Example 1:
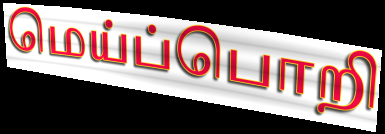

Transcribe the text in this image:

மெய்ப்பொறி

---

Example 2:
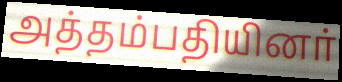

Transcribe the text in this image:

அத்தம்பதியினர்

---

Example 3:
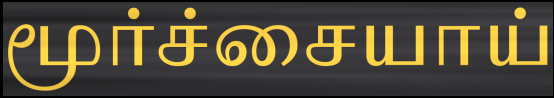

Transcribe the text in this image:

மூர்ச்சையாய்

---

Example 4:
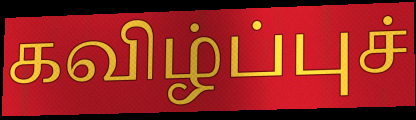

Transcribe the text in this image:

கவிழ்ப்புச்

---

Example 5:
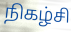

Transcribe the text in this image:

நிகழ்சி